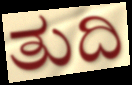
ತುದಿ